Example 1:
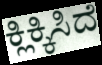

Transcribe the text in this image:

ಕ್ಲಿಕ್ಕಿಸಿದೆ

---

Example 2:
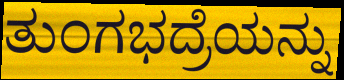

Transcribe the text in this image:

ತುಂಗಭದ್ರೆಯನ್ನು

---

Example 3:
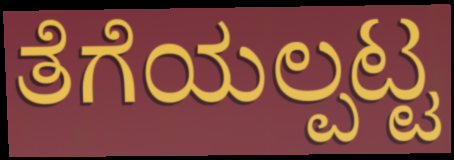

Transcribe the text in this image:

ತೆಗೆಯಲ್ಪಟ್ಟ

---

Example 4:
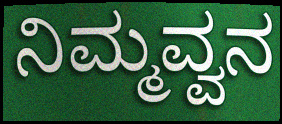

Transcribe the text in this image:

ನಿಮ್ಮವ್ವನ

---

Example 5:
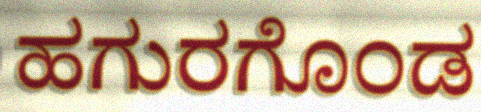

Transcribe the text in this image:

ಹಗುರಗೊಂಡ